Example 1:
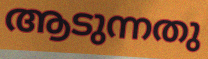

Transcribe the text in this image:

ആടുന്നതു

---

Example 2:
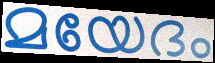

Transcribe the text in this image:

മയേദം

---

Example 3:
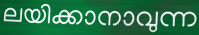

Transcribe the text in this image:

ലയിക്കാനാവുന്ന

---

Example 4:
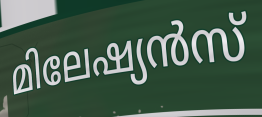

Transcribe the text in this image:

മിലേഷ്യൻസ്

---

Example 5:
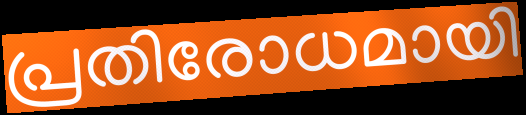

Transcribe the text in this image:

പ്രതിരോധമായി